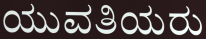
ಯುವತಿಯರು